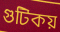
গুটিকয়